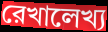
রেখালেখ্য